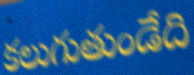
కలుగుతుండేది